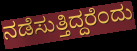
ನಡೆಸುತ್ತಿದ್ದರೆಂದು